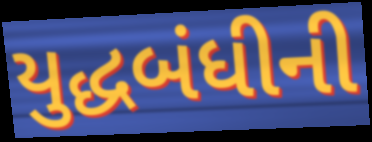
યુદ્ધબંધીની